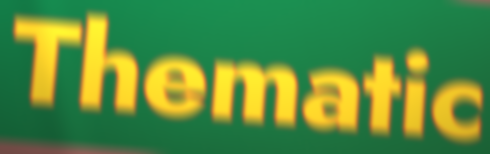
Thematic